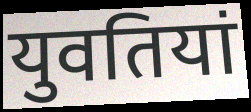
युवतियां